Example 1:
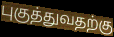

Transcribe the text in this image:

புகுத்துவதற்கு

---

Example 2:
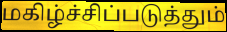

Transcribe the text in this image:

மகிழ்ச்சிப்படுத்தும்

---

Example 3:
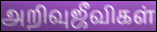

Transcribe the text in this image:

அறிவுஜீவிகள்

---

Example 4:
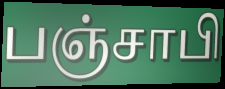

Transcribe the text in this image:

பஞ்சாபி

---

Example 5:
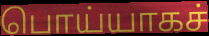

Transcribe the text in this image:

பொய்யாகச்